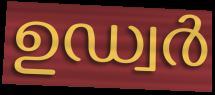
ഉഡ്വർ